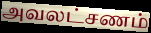
அவலட்சணம்